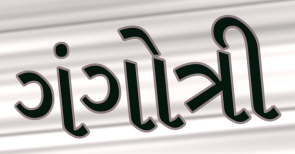
ગંગોત્રી